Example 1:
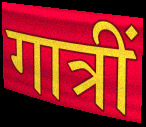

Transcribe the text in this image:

गात्रीं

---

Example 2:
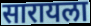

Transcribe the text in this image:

सारायला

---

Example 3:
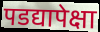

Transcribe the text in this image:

पडद्यापेक्षा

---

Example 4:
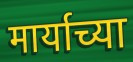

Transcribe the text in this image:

मार्याच्या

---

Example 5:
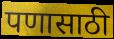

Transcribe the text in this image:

पणासाठी